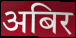
अबिर